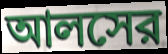
আলসের